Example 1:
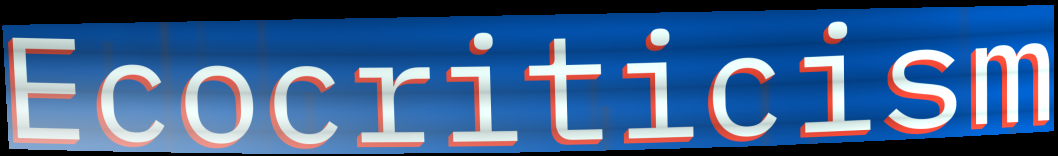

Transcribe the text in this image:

Ecocriticism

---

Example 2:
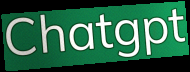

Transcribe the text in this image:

Chatgpt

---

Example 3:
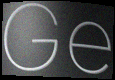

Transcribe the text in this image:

Ge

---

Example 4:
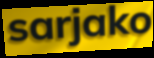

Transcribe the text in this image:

sarjako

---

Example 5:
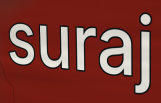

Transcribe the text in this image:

suraj